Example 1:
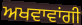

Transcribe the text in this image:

ਅਖਵਾਵਾਂਗੀ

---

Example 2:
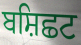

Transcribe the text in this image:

ਬਸ਼ਿਛਟ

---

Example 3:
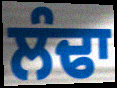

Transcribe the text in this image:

ਲੰਢਾ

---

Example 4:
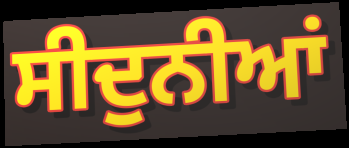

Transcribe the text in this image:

ਸੀਦੁਨੀਆਂ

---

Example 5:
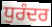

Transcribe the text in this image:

ਧੁਰੰਦਰ